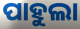
ପାହୁଲା